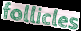
follicles